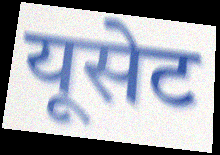
यूसेट